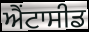
ਐਂਟਾਸੀਡ